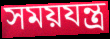
সময়যন্ত্র